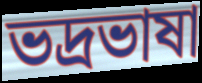
ভদ্রভাষা